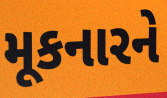
મૂકનારને